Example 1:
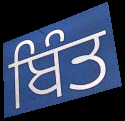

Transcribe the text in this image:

ਬਿੰਤ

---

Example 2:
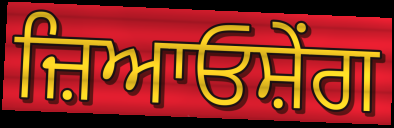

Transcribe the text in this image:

ਜ਼ਿਆਓਸ਼ੇਂਗ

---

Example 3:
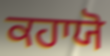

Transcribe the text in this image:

ਕਹਾਯੋ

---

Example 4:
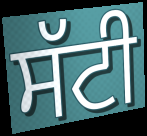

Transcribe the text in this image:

ਸੱਟੀ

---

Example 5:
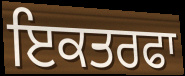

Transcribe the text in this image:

ਇਕਤਰਫਾ